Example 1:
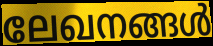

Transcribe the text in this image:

ലേഖനങ്ങൾ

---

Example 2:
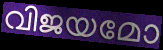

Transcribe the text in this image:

വിജയമോ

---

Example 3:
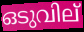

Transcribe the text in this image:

ഒടുവില്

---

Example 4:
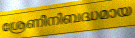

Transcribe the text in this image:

ശ്രേണീനിബദ്ധമായ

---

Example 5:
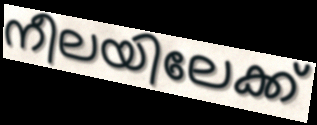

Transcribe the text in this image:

നീലയിലേക്ക്